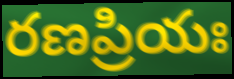
రణప్రియః